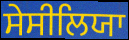
ਸੇਸੀਲਿਯਾ